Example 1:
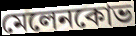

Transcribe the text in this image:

মেলেনকোভ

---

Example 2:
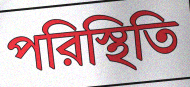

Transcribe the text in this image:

পরিস্থিতি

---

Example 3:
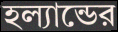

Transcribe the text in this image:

হল্যান্ডের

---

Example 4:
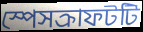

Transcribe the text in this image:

স্পেসক্রাফটটি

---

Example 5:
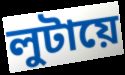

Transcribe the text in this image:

লুটায়ে